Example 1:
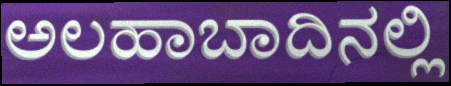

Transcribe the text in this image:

ಅಲಹಾಬಾದಿನಲ್ಲಿ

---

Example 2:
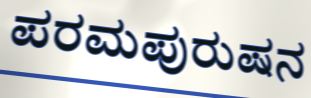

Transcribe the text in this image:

ಪರಮಪುರುಷನ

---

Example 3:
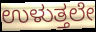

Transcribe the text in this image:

ಉಳುತ್ತಲೇ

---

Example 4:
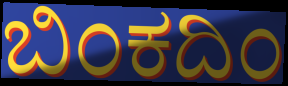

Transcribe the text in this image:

ಬಿಂಕದಿಂ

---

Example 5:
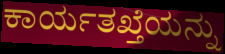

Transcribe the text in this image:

ಕಾರ್ಯತಖ್ತೆಯನ್ನು